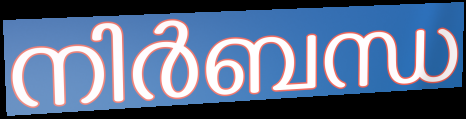
നിർബന്ധ